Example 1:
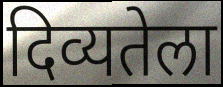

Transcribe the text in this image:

दिव्यतेला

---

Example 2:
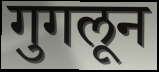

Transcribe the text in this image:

गुगलून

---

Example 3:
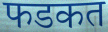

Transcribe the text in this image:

फडकत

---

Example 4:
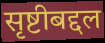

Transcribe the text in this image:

सृष्टीबद्दल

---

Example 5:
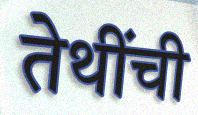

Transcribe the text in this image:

तेथींची